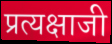
प्रत्यक्षाजी